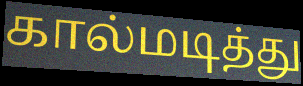
கால்மடித்து